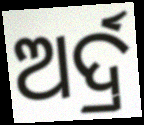
ଅର୍ଦ୍ର